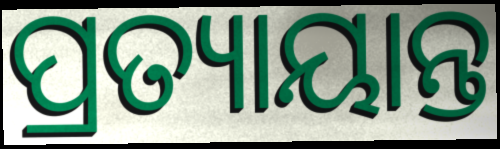
ପ୍ରତ୍ୟାୟାନ୍ତ